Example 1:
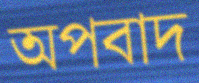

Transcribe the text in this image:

অপবাদ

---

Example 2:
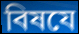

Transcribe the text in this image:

বিষযে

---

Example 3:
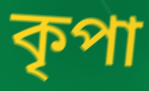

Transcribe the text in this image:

কৃপা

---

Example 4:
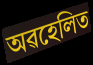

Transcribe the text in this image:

অৱহেলিত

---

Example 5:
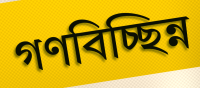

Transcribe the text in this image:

গণবিচ্ছিন্ন